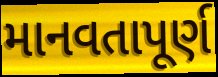
માનવતાપૂર્ણ